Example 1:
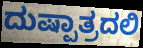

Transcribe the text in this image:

ದುಷ್ಪಾತ್ರದಲಿ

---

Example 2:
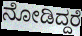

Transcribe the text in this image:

ನೋಡಿದ್ದರೆ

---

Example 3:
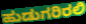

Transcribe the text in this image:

ಹುಡುಗರಿರಲಿ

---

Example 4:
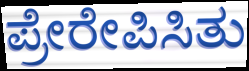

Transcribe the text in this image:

ಪ್ರೇರೇಪಿಸಿತು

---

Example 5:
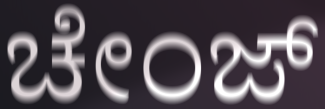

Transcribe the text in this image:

ಚೇಂಜ್